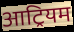
आट्रियम